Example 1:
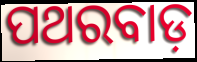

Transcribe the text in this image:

ପଥରବାଡ଼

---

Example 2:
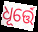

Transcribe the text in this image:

ଧୂର୍ତ୍ତେ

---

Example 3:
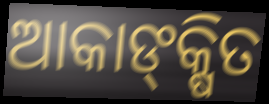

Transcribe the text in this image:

ଆକାଙ୍‍କ୍ଷିତ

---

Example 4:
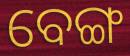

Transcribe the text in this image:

ବେଙ୍ଗ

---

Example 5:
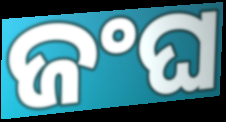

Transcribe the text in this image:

ଜଂଘ